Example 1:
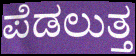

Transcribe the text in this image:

ಪೆಡಲುತ್ತ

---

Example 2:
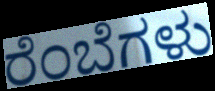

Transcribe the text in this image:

ರೆಂಬೆಗಳು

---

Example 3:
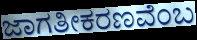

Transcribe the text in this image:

ಜಾಗತೀಕರಣವೆಂಬ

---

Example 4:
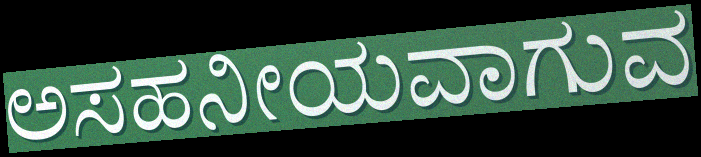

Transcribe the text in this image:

ಅಸಹನೀಯವಾಗುವ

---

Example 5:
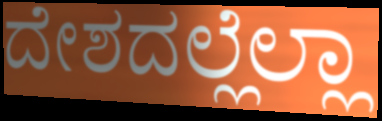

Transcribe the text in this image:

ದೇಶದಲ್ಲೆಲ್ಲಾ